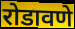
रोडावणे